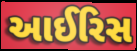
આઈરિસ